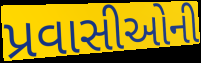
પ્રવાસીઓની